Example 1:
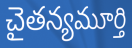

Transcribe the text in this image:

చైతన్యమూర్తి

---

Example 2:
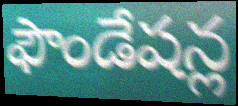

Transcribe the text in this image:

ఫౌండేషన్ల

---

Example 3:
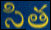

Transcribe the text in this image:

సిత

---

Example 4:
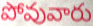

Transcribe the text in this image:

పోవువారు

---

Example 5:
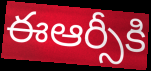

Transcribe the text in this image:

ఈఆర్సీకి